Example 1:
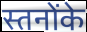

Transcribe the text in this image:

स्तनोंके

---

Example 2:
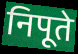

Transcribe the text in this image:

निपूते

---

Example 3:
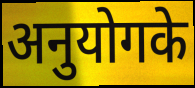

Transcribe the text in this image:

अनुयोगके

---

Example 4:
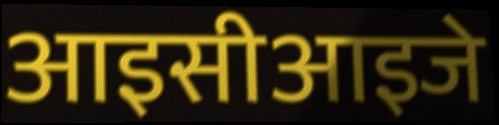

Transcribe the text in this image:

आइसीआइजे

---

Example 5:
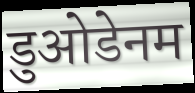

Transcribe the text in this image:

डुओडेनम